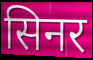
सिनर